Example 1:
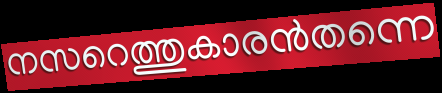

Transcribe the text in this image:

നസറെത്തുകാരൻതന്നെ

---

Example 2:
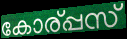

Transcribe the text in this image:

കോര്പ്പസ്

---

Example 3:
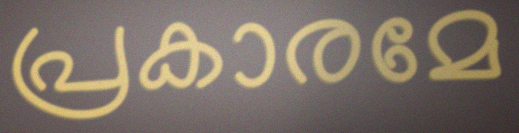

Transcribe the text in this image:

പ്രകാരമേ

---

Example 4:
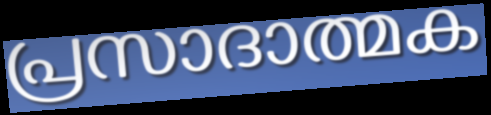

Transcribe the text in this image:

പ്രസാദാത്മക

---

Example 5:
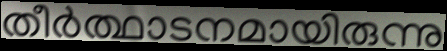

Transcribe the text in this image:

തീർത്ഥാടനമായിരുന്നു